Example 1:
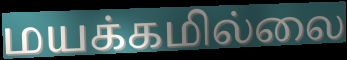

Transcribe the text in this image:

மயக்கமில்லை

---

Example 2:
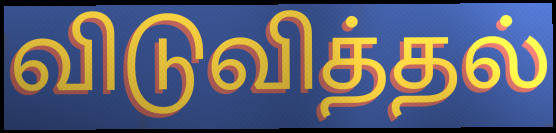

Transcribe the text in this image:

விடுவித்தல்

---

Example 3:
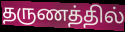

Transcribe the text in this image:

தருணத்தில்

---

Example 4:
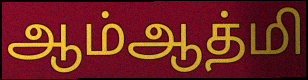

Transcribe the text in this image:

ஆம்ஆத்மி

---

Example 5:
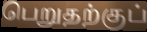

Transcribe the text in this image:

பெறுதற்குப்